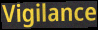
Vigilance